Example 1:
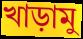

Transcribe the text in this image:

খাড়ামু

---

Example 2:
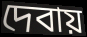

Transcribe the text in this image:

দেবায়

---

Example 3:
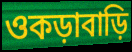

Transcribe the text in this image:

ওকড়াবাড়ি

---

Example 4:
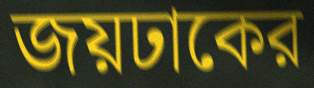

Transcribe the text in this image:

জয়ঢাকের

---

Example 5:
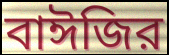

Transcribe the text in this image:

বাঈজির